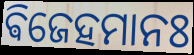
ଵିଜେହମାନଃ